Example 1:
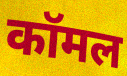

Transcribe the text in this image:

कॉमल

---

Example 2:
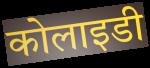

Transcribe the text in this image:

कोलाइडी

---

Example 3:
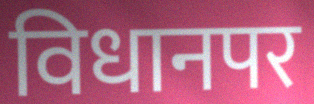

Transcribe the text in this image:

विधानपर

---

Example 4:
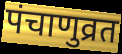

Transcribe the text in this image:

पंचाणुव्रत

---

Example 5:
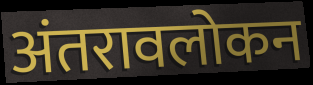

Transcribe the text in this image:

अंतरावलोकन